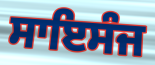
ਸਾਇਸੰਜ